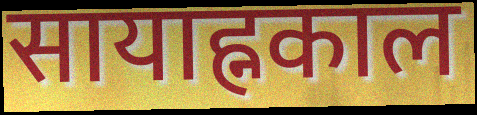
सायाह्नकाल